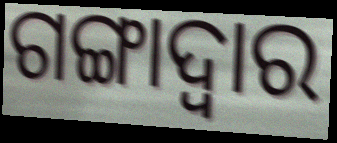
ଗଙ୍ଗାଦ୍ୱାର